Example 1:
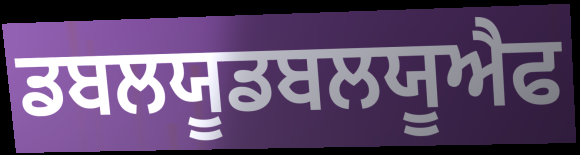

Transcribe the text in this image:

ਡਬਲਯੂਡਬਲਯੂਐਫ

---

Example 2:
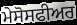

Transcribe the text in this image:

ਮੇਸੋਸਫੀਅਰ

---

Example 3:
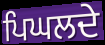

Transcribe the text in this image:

ਪਿਘਲਦੇ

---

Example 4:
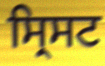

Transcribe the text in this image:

ਸ੍ਰਿਸਟ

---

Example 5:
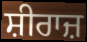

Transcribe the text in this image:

ਸ਼ੀਰਾਜ਼